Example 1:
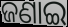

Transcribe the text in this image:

ଜଣାଇ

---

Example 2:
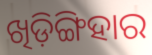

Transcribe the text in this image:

ଖିଡ଼ିଙ୍ଗିହାର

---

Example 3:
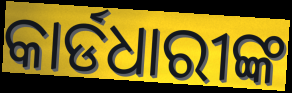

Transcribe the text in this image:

କାର୍ଡଧାରୀଙ୍କ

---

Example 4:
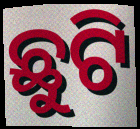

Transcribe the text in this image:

ଛୁଟି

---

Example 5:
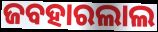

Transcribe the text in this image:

ଜବହାରଲାଲ